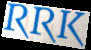
RRK